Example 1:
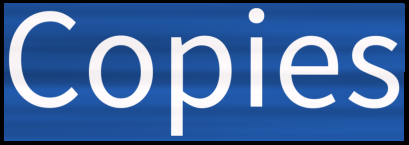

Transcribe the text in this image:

Copies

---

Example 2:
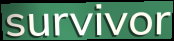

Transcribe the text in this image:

survivor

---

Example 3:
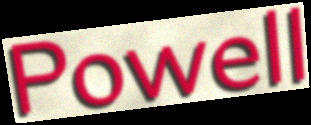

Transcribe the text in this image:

Powell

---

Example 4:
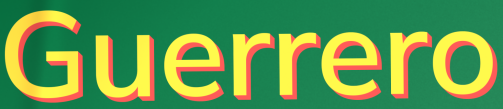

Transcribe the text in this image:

Guerrero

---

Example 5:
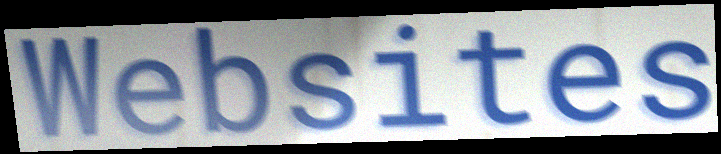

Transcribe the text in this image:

Websites